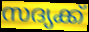
സദ്യക്ക്